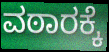
ವಠಾರಕ್ಕೆ